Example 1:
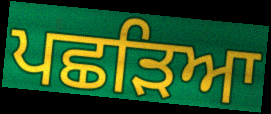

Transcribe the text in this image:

ਪਛੜਿਆ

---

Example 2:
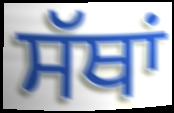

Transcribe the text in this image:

ਸੱਥਾਂ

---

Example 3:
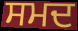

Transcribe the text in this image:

ਸਮਦ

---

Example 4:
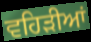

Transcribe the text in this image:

ਵਹਿੜੀਆਂ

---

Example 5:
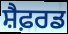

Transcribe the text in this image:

ਸ਼ੈਫ਼ਰਡ